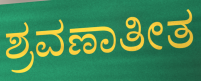
ಶ್ರವಣಾತೀತ